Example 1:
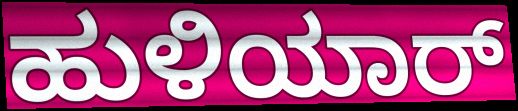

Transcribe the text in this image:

ಹುಳಿಯಾರ್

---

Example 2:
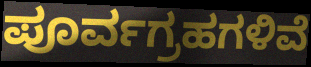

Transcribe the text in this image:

ಪೂರ್ವಗ್ರಹಗಳಿವೆ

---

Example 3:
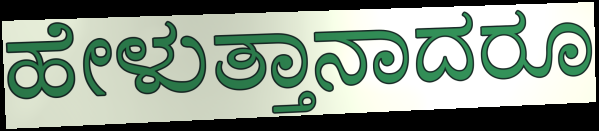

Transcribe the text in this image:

ಹೇಳುತ್ತಾನಾದರೂ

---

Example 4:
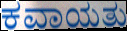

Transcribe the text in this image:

ಕವಾಯತು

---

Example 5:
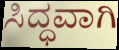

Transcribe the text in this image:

ಸಿದ್ಧವಾಗಿ